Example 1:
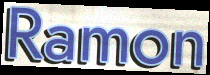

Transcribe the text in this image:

Ramon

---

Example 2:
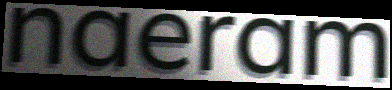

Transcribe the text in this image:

naeram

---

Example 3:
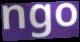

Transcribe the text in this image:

ngo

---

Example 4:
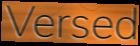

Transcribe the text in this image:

Versed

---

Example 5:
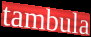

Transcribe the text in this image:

tambula